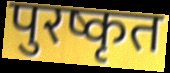
पुरष्कृत